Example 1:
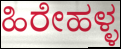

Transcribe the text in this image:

ಹಿರೇಹಳ್ಳ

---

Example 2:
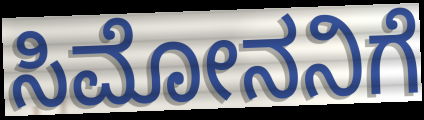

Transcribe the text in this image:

ಸಿಮೋನನಿಗೆ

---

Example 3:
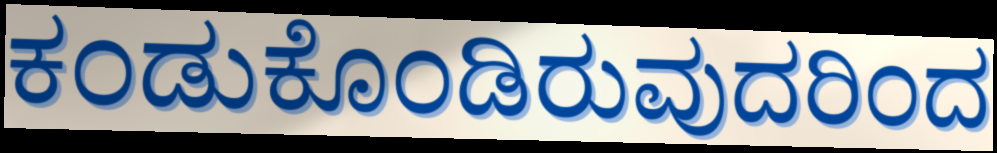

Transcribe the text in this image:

ಕಂಡುಕೊಂಡಿರುವುದರಿಂದ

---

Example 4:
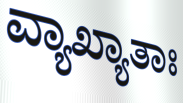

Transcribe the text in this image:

ವ್ಯಾಖ್ಯಾತಾಃ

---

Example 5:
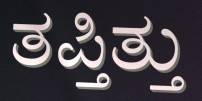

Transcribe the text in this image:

ತಪ್ತಿತ್ತು